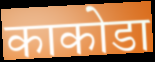
काकोडा